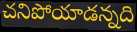
చనిపోయాడన్నది